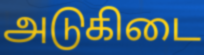
அடுகிடை